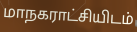
மாநகராட்சியிடம்